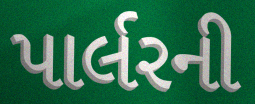
પાર્લરની